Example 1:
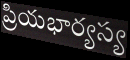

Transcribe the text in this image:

ప్రియభార్యస్య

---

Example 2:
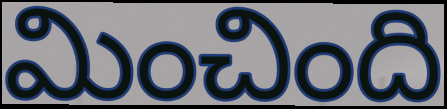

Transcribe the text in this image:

మించింది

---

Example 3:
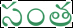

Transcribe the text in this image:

సంత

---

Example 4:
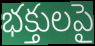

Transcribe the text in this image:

భక్తులపై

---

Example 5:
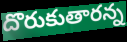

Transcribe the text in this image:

దొరుకుతారన్న